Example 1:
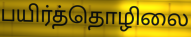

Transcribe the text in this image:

பயிர்த்தொழிலை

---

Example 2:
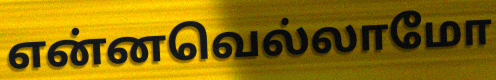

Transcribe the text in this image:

என்னவெல்லாமோ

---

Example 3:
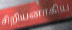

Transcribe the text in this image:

சிறியனாகிய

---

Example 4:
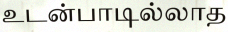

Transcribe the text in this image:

உடன்பாடில்லாத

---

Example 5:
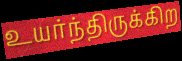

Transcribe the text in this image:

உயர்ந்திருக்கிற